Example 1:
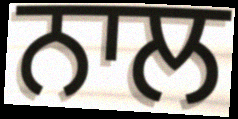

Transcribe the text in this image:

ਨਾਲ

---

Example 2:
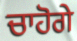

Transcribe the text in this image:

ਚਾਹੋਗੇ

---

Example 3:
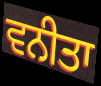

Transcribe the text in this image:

ਵਨੀਤਾ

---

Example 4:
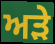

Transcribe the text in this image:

ਅੜੇ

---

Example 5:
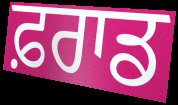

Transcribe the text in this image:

ਫ਼ਰਾਡ